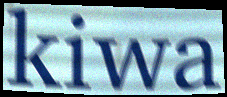
kiwa